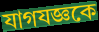
যাগযজ্ঞকে